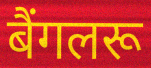
बैंगलरू